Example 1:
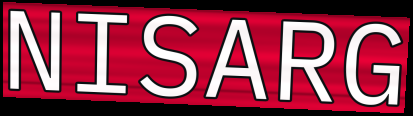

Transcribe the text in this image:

NISARG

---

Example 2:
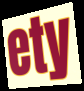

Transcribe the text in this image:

ety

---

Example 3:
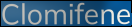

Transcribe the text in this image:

Clomifene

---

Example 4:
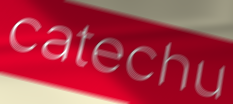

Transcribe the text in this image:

catechu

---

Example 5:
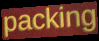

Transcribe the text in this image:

packing